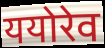
ययोरेव